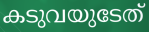
കടുവയുടേത്